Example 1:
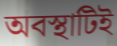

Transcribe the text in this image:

অবস্থাটিই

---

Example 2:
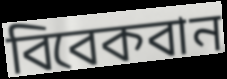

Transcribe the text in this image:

বিবেকবান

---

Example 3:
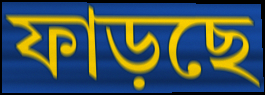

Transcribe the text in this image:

ফাড়ছে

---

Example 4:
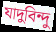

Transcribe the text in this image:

যাদুবিন্দু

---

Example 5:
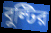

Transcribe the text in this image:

বুল্টির